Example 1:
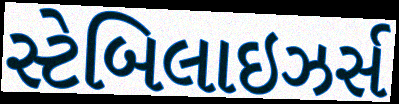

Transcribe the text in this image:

સ્ટેબિલાઇઝર્સ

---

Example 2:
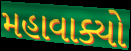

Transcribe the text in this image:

મહાવાક્યો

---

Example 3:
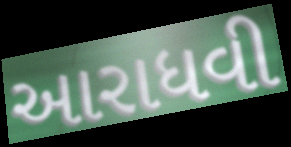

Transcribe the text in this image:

આરાધવી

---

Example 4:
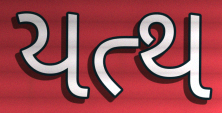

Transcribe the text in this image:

યત્થ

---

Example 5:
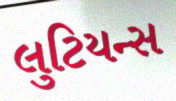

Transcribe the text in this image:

લુટિયન્સ